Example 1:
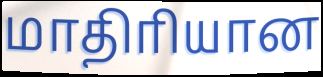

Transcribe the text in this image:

மாதிரியான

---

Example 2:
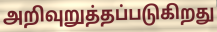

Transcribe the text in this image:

அறிவுறுத்தப்படுகிறது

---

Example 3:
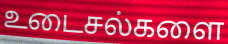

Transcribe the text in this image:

உடைசல்களை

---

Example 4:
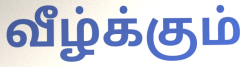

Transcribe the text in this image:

வீழ்க்கும்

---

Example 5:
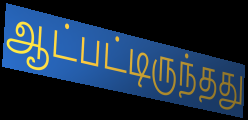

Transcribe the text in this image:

ஆட்பட்டிருந்தது